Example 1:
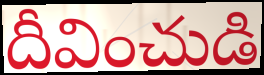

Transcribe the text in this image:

దీవించుడి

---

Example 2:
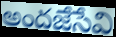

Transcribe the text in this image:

అందజేసేవి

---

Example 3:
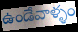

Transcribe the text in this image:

ఉండేవాళ్ళం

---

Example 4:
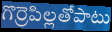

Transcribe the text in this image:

గొర్రెపిల్లతోపాటు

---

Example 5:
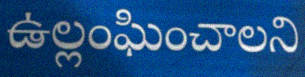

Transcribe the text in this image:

ఉల్లంఘించాలని